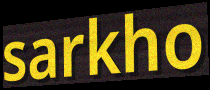
sarkho